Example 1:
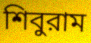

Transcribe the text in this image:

শিবুরাম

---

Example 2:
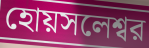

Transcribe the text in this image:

হোয়সলেশ্বর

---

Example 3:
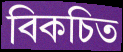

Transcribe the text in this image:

বিকচিত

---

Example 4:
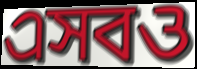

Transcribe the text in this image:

এসবও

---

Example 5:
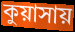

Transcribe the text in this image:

কুয়াসায়